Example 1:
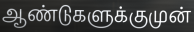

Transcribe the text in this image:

ஆண்டுகளுக்குமுன்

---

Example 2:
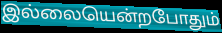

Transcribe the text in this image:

இல்லையென்றபோதும்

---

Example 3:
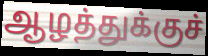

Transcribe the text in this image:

ஆழத்துக்குச்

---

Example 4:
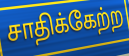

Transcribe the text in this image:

சாதிக்கேற்ற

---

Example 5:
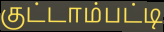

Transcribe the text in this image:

குட்டாம்பட்டி